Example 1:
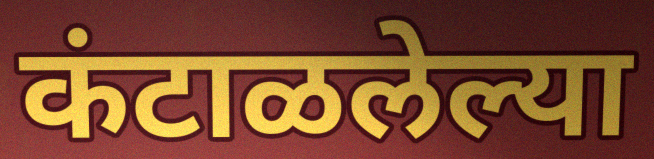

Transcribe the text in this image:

कंटाळलेल्या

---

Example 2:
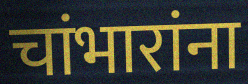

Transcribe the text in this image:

चांभारांना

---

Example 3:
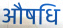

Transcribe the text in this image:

औषधि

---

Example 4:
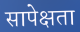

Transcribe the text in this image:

सापेक्षता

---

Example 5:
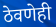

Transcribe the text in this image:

ठेवणेही